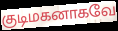
குடிமகனாகவே